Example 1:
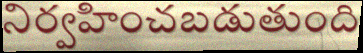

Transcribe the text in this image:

నిర్వహించబడుతుంది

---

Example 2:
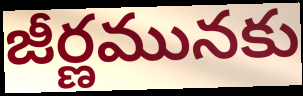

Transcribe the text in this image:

జీర్ణమునకు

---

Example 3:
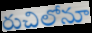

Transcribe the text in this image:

రుచిలోనూ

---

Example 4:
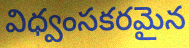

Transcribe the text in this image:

విధ్వంసకరమైన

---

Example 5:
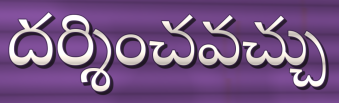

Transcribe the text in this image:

దర్శించవచ్చు